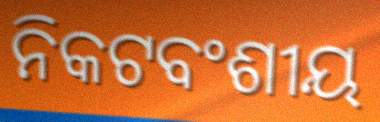
ନିକଟବଂଶୀୟ